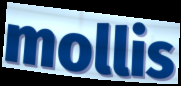
mollis